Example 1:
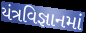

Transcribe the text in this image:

યંત્રવિજ્ઞાનમાં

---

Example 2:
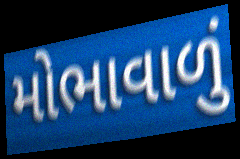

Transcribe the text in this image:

મોભાવાળું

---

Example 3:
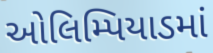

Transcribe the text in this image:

ઓલિમ્પિયાડમાં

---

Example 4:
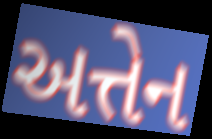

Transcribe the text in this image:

અત્તેન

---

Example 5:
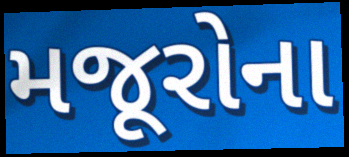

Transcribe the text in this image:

મજૂરોના